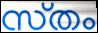
സ്‌തം